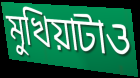
মুখিয়াটাও